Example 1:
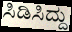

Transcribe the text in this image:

ಸಿಡಿಸಿದ್ದು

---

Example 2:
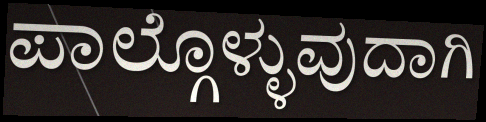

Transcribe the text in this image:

ಪಾಲ್ಗೊಳ್ಳುವುದಾಗಿ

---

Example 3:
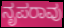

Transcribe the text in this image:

ನೃಪರಾವು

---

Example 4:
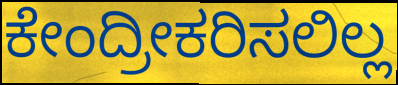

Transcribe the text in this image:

ಕೇಂದ್ರೀಕರಿಸಲಿಲ್ಲ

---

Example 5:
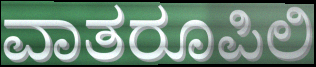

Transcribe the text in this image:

ವಾತರೂಪಿಲಿ